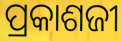
ପ୍ରକାଶଜୀ